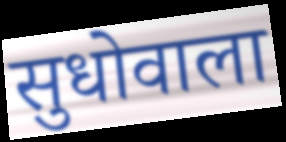
सुधोवाला